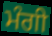
ਮੰਗੀ